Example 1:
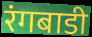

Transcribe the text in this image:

रंगबाडी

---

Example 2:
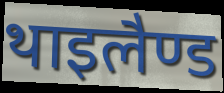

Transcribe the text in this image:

थाइलैण्ड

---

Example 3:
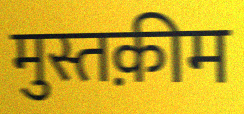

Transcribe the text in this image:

मुस्तक़ीम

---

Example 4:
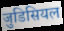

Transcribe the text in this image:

जुडिसियल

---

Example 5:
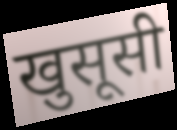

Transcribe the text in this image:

खुसूसी